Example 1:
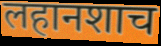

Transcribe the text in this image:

लहानशाच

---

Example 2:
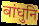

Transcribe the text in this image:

बांधुनि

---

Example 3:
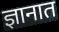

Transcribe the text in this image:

ज्ञानात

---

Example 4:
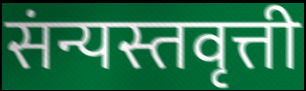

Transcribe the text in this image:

संन्यस्तवृत्ती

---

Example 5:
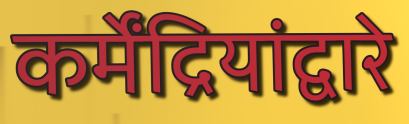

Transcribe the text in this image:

कर्मेंद्रियांद्वारे